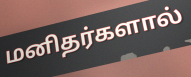
மனிதர்களால்